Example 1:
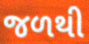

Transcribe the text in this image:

જળથી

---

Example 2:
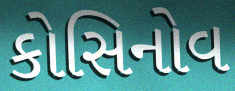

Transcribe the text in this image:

કોસિનોવ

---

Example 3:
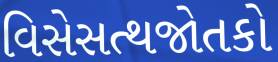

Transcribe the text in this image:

વિસેસત્થજોતકો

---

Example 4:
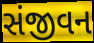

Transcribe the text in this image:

સંજીવન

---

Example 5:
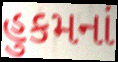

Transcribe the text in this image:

હુકમનાં